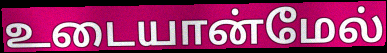
உடையான்மேல்